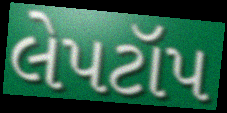
લેપટૉપ